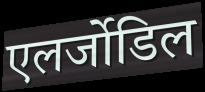
एलर्जोडिल